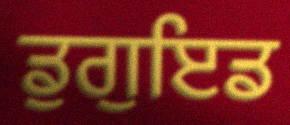
ਡੁਗੁਇਡ